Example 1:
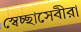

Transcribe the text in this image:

স্বেচ্ছাসেবীরা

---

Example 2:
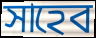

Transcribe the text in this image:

সাহেব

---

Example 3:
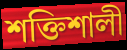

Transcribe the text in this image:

শক্তিশালী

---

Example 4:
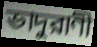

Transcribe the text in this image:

ভাদুরাণী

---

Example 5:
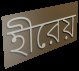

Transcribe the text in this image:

হীরেয়